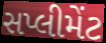
સપ્લીમેંટ